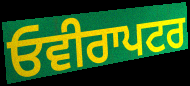
ਓਵੀਰਾਪਟਰ